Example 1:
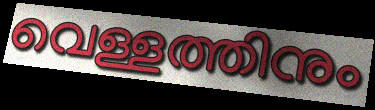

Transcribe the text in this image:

വെള്ളത്തിനും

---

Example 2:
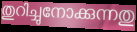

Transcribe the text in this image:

തുറിച്ചുനോക്കുന്നതു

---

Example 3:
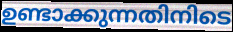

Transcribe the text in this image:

ഉണ്ടാക്കുന്നതിനിടെ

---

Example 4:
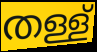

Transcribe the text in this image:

തള്ള്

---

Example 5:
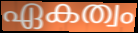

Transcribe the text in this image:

ഏകത്വം